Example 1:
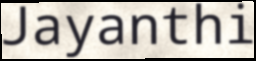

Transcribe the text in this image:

Jayanthi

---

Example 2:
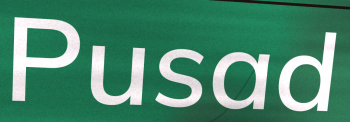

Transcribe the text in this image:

Pusad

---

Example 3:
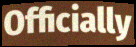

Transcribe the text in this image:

Officially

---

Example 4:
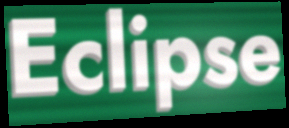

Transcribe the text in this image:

Eclipse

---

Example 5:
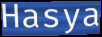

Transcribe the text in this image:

Hasya